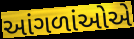
આંગળાંઓએ